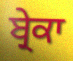
ਬ੍ਰੇਕਾ